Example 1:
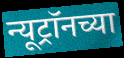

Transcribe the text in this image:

न्यूट्रॉनच्या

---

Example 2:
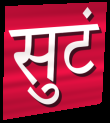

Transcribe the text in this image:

सुटं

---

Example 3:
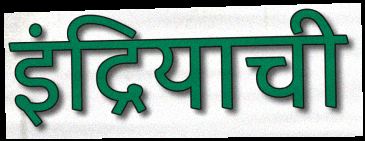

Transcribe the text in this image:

इंद्रियाची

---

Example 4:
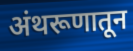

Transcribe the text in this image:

अंथरूणातून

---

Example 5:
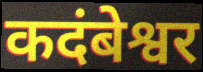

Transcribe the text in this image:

कदंबेश्वर